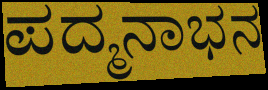
ಪದ್ಮನಾಭನ